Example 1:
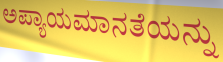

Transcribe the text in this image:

ಅಪ್ಯಾಯಮಾನತೆಯನ್ನು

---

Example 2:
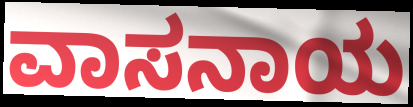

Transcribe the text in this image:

ವಾಸನಾಯ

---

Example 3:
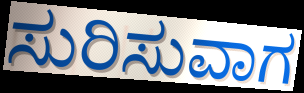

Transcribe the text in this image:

ಸುರಿಸುವಾಗ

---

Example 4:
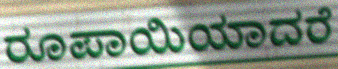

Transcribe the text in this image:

ರೂಪಾಯಿಯಾದರೆ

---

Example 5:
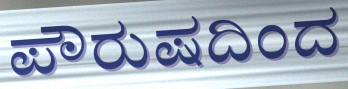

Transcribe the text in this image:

ಪೌರುಷದಿಂದ